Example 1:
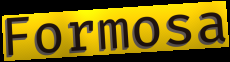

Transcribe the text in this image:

Formosa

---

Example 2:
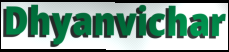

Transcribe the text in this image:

Dhyanvichar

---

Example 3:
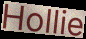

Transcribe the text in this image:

Hollie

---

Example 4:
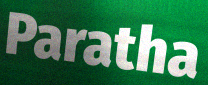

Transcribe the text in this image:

Paratha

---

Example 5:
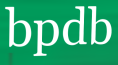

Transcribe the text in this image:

bpdb